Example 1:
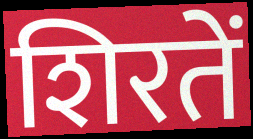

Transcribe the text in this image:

शिरतें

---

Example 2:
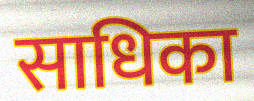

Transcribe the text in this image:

साधिका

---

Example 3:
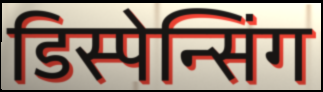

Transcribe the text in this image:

डिस्पेन्सिंग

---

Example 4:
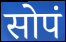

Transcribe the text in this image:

सोपं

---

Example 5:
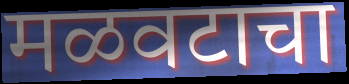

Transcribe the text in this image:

मळवटाचा